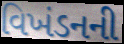
વિખંડનની